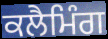
ਕਲੈਮਿੰਗ